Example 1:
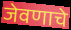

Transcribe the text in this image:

जेवणाचे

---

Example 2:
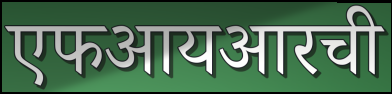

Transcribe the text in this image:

एफआयआरची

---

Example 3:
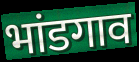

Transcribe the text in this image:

भांडगाव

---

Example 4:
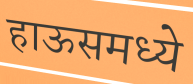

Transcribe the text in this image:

हाऊसमध्ये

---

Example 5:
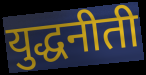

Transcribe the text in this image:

युद्धनीती